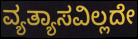
ವ್ಯತ್ಯಾಸವಿಲ್ಲದೇ